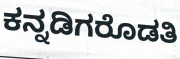
ಕನ್ನಡಿಗರೊಡತಿ